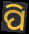
ପି